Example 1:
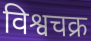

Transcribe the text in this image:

विश्वचक्र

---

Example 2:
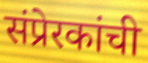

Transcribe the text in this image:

संप्रेरकांची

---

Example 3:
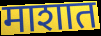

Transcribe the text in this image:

माशात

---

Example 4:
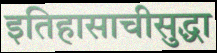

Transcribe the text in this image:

इतिहासाचीसुद्धा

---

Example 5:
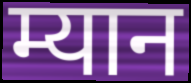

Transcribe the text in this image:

म्यान